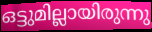
ഒട്ടുമില്ലായിരുന്നു